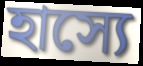
হাস্যে